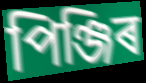
পিঞ্জিৰ